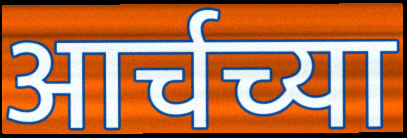
आर्चच्या